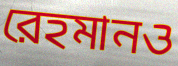
রেহমানও